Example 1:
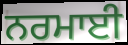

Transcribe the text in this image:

ਨਰਮਾਈ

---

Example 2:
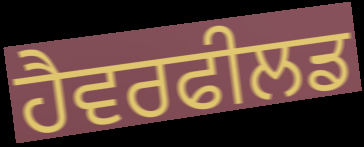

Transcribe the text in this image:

ਹੈਵਰਫੀਲਡ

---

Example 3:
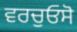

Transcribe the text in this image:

ਵਰਚੁਓਸੋ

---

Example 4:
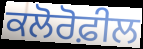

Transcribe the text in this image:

ਕਲੋਰੋਫ਼ੀਲ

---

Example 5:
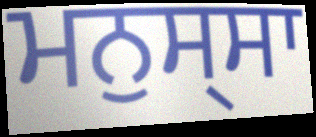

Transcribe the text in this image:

ਮਨੁਸ੍ਸਾ